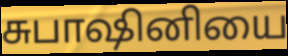
சுபாஷினியை